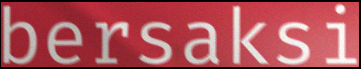
bersaksi